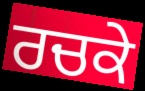
ਰਚਕੇ